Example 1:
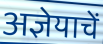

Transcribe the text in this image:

अज्ञेयाचें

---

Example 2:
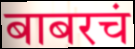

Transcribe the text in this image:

बाबरचं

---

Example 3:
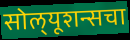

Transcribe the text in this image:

सोल्यूशन्सचा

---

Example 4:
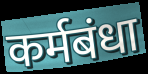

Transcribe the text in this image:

कर्मबंधा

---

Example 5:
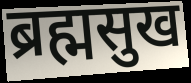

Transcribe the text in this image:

ब्रह्मसुख